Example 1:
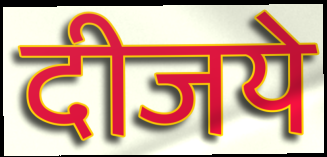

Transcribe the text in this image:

दीजये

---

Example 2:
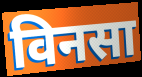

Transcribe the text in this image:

विनसा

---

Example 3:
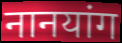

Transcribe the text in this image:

नानयांग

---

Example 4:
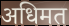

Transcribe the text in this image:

अधिमत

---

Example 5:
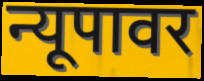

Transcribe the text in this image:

न्यूपावर